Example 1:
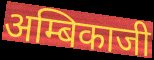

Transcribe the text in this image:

अम्बिकाजी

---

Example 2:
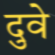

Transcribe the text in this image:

दुवे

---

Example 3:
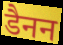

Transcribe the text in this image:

डैनन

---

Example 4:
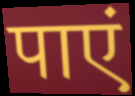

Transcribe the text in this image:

पाएं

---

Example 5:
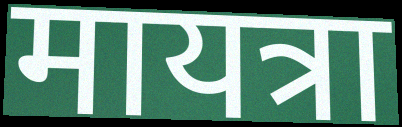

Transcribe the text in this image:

मायत्रा